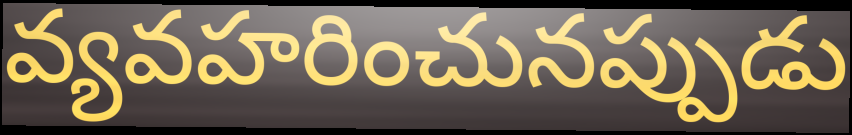
వ్యవహరించునప్పుడు